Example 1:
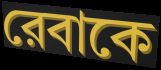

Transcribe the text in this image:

রেবাকে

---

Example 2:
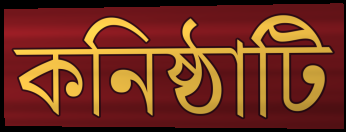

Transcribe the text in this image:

কনিষ্ঠাটি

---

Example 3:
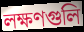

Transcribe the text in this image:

লক্ষণগুলি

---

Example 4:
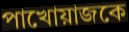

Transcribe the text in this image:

পাখোয়াজকে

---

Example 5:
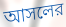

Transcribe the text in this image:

আসলের